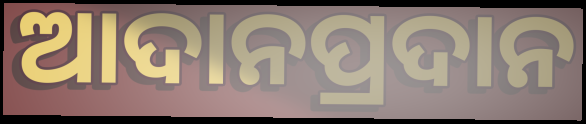
ଆଦାନପ୍ରଦାନ